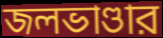
জলভাণ্ডার